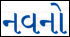
નવનો